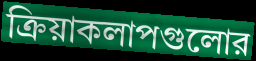
ক্রিয়াকলাপগুলোর